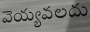
వెయ్యవలదు